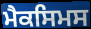
ਮੈਕਸਿਮਸ